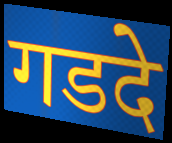
गडदे